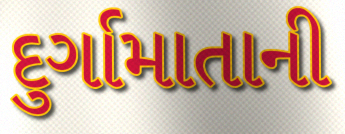
દુર્ગામાતાની